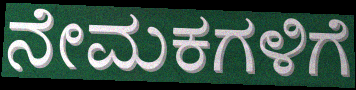
ನೇಮಕಗಳಿಗೆ